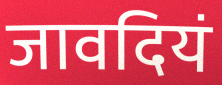
जावदियं